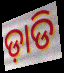
ଡ଼ାଡି